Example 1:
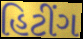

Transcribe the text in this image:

હિટીંગ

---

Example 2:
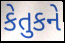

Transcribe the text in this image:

કેતુકને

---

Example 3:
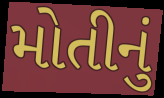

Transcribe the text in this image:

મોતીનું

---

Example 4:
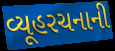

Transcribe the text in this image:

વ્યૂહરચનાની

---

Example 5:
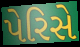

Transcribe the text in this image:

પેરિસે